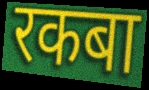
रकबा